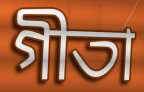
গীতা